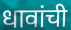
धावांची